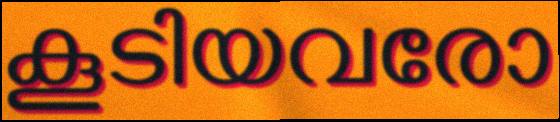
കൂടിയവരോ